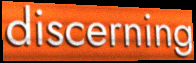
discerning